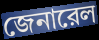
জেনারেল